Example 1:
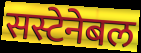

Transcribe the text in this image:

सस्टेनेबल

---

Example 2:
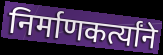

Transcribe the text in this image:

निर्माणकर्त्यांने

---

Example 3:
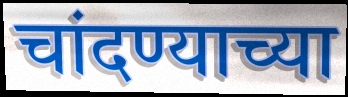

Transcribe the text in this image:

चांदण्याच्या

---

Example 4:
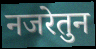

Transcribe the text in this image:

नजरेतुन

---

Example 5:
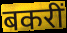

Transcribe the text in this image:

बकरीं